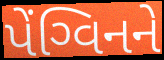
પેંગ્વિનને